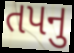
તપનુ